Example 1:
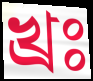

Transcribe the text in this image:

খ্রঃ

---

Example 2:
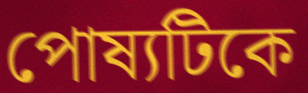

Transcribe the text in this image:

পোষ্যটিকে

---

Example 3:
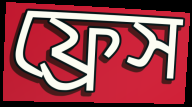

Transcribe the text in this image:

ফ্রেস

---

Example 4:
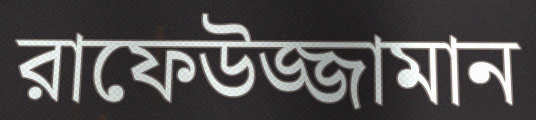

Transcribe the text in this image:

রাফেউজ্জামান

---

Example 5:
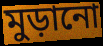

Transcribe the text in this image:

মুড়ানো